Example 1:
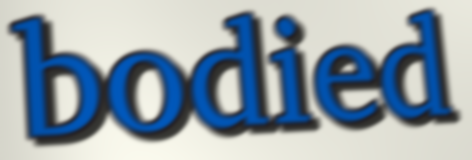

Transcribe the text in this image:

bodied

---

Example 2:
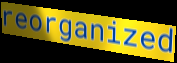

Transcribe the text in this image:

reorganized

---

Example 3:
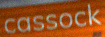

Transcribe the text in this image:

cassock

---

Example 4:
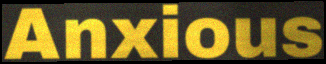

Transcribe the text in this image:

Anxious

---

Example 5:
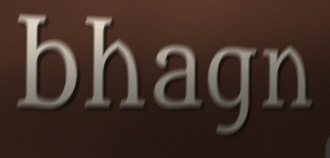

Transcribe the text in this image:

bhagn